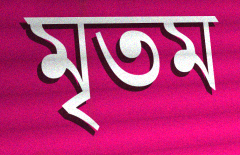
মৃতম